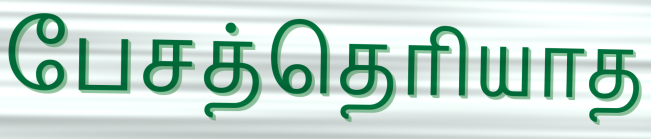
பேசத்தெரியாத